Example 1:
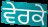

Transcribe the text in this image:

ਵੇਰਕੇ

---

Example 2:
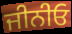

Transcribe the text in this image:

ਜੀਨੀਓ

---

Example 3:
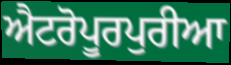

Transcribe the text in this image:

ਐਟਰੋਪੂਰਪੁਰੀਆ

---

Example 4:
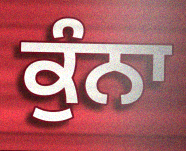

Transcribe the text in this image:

ਕੁੰਨਾ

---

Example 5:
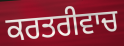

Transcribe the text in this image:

ਕਰਤਰੀਵਾਚ